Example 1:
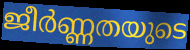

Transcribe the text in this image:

ജീർണ്ണതയുടെ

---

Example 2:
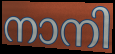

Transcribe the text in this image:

നാനി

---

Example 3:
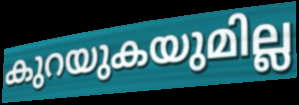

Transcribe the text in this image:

കുറയുകയുമില്ല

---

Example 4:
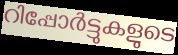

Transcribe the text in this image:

റിപ്പോർട്ടുകളുടെ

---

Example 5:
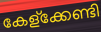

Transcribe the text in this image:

കേള്ക്കേണ്ടി